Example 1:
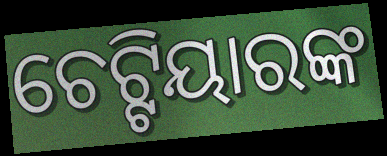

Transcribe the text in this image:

ଚେଟ୍ଟିୟାରଙ୍କ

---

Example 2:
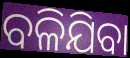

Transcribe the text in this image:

ବଳିଯିବା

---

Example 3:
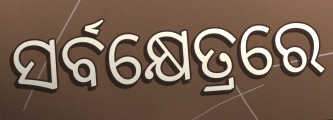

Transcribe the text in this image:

ସର୍ବକ୍ଷେତ୍ରରେ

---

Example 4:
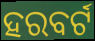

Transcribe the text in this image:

ହରବର୍ଟ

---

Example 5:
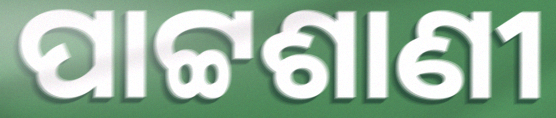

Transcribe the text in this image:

ପାଟ୍ଟଶାଣୀ